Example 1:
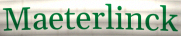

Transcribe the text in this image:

Maeterlinck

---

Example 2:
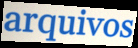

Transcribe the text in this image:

arquivos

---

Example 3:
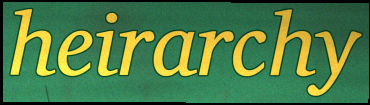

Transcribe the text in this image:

heirarchy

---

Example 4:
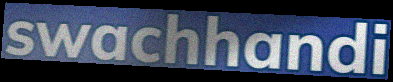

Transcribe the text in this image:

swachhandi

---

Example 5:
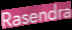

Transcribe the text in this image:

Rasendra